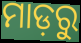
ମାଡ଼ରୁ